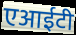
एआईटी